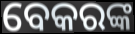
ବେକରଙ୍କ